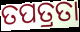
ତପତ୍ରତା